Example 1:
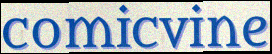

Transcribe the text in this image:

comicvine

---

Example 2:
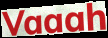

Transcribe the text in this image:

Vaaah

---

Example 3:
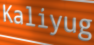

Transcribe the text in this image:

Kaliyug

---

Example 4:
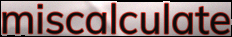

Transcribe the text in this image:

miscalculate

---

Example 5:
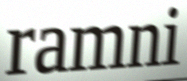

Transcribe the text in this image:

ramni